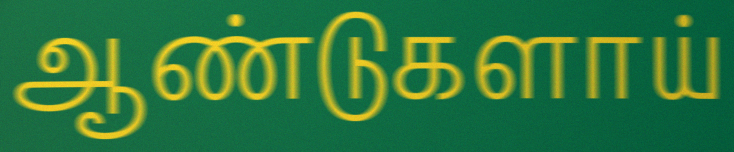
ஆண்டுகளாய்